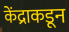
केंद्राकडून